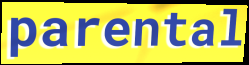
parental